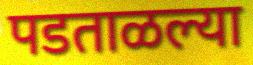
पडताळल्या